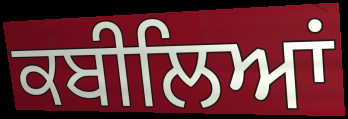
ਕਬੀਲਿਆਂ